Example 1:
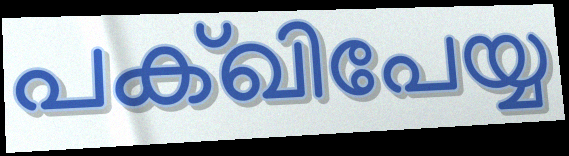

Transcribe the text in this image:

പക്ഖിപേയ്യ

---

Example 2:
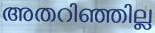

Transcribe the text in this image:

അതറിഞ്ഞില്ല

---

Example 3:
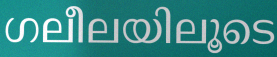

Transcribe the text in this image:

ഗലീലയിലൂടെ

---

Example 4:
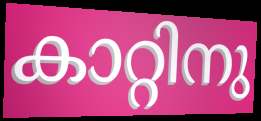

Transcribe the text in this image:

കാറ്റിനു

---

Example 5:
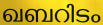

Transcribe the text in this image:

ഖബറിടം